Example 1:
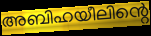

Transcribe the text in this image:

അബിഹയീലിന്റെ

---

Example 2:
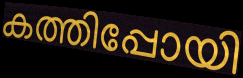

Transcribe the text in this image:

കത്തിപ്പോയി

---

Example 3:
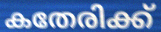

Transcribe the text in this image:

കതേരിക്ക്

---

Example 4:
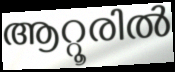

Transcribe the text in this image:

ആറ്റൂരിൽ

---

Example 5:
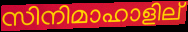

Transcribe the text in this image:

സിനിമാഹാളില്